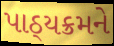
પાઠ્યક્રમને